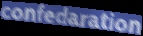
confedaration